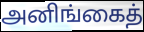
அனிங்கைத்